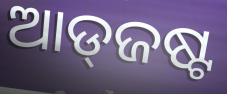
ଆଡ୍‌ଜଷ୍ଟ